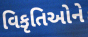
વિકૃતિઓને